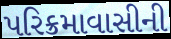
પરિક્રમાવાસીની